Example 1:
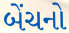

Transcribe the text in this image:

બેંચનો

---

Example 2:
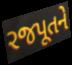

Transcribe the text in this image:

રજપૂતને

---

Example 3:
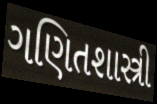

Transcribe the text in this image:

ગણિતશાસ્ત્રી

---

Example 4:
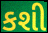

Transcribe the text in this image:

કશી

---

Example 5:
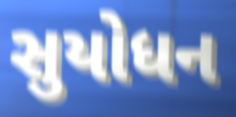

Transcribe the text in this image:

સુયોધન